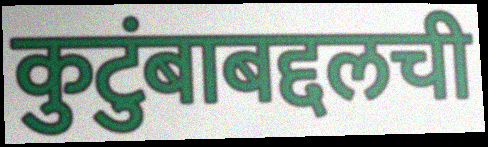
कुटुंबाबद्दलची